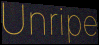
Unripe